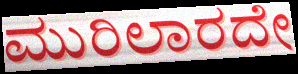
ಮುರಿಲಾರದೇ